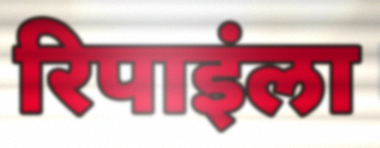
रिपाइंला